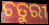
ଚତୁରୀ